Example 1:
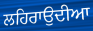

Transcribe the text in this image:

ਲਹਿਰਾਉਦੀਆ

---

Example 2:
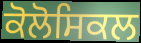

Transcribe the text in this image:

ਕੋਲੋਸਿਕਲ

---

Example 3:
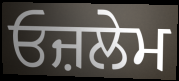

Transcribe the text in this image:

ਓਜ਼ਲੇਮ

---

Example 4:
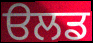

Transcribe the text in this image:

ੳਲਡ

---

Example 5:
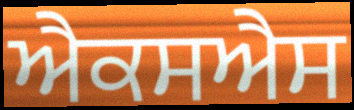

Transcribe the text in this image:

ਐਕਸਐਸ